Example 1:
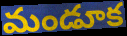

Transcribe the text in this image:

మండూక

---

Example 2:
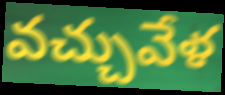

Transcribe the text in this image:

వచ్చువేళ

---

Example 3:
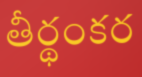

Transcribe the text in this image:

తీర్థంకర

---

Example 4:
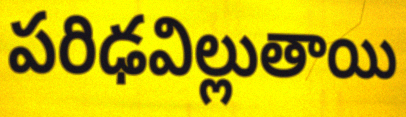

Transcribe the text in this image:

పరిఢవిల్లుతాయి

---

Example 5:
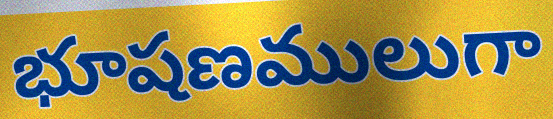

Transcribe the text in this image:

భూషణములుగా